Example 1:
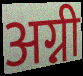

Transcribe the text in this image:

अग्नी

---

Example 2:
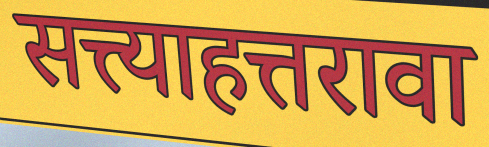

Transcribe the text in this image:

सत्त्याहत्तरावा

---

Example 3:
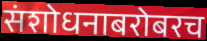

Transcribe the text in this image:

संशोधनाबरोबरच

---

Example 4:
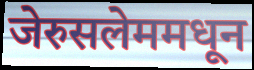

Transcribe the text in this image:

जेरुसलेममधून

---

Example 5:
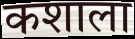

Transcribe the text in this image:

कशाला